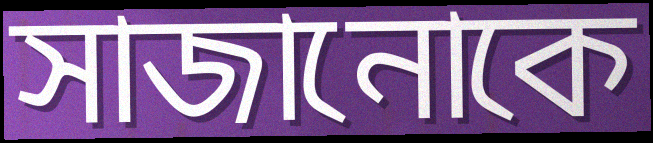
সাজানোকে